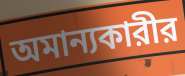
অমান্যকারীর